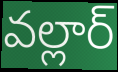
వల్లార్